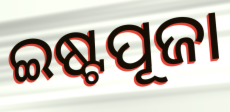
ଇଷ୍ଟପୂଜା